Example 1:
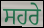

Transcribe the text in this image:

ਸਹਰੇ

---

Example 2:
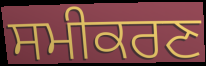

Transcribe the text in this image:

ਸਮੀਕਰਣ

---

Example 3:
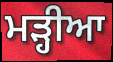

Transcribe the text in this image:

ਮੜ੍ਹੀਆ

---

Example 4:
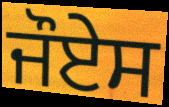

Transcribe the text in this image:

ਜੌਏਸ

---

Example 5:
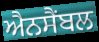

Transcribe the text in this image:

ਐਨਸੈਂਬਲ